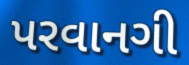
પરવાનગી